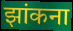
झांकना